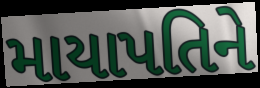
માયાપતિને